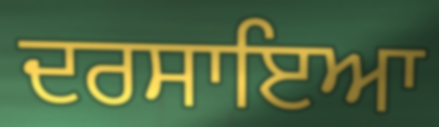
ਦਰਸਾਇਆ